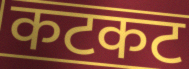
कटकट